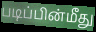
படிப்பின்மீது